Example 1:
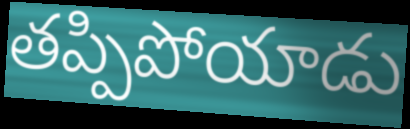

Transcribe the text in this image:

తప్పిపోయాడు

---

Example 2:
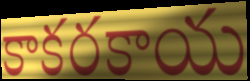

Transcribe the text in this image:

కాకరకాయ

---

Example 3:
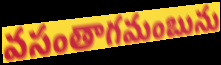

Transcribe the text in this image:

వసంతాగమంబును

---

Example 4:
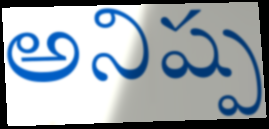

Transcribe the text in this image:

అనిష్ప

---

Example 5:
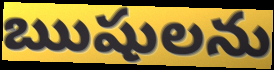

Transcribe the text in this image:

ఋషులను